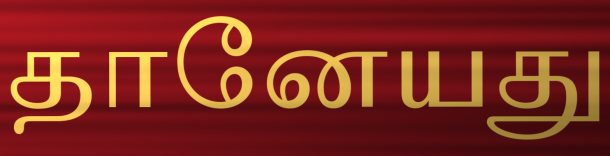
தானேயது